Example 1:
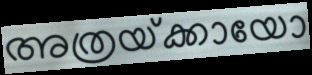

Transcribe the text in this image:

അത്രയ്‌ക്കായോ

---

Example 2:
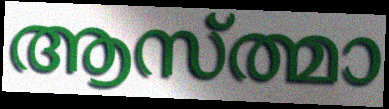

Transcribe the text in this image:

ആസ്ത്മാ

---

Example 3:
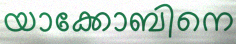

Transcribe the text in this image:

യാക്കോബിനെ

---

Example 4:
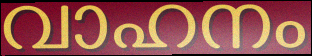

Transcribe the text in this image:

വാഹനം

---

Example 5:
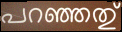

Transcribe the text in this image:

പറഞ്ഞതു്